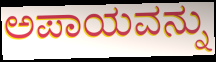
ಅಪಾಯವನ್ನು